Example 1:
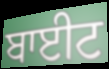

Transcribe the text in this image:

ਬਾਈਟ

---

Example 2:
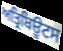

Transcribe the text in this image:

ਅਤ੍ਰਿਬਿਊਟਸ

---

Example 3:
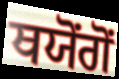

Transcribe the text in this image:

ਥਯੋਂਗੋਂ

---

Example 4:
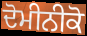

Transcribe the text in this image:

ਦੋਮੀਨੀਕੋ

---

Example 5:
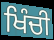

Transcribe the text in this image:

ਖਿੰਚੀ